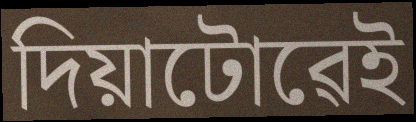
দিয়াটোৱেই